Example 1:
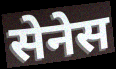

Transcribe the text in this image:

सेनेस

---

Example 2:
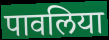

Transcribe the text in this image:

पावलिया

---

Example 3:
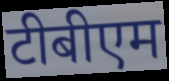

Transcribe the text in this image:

टीबीएम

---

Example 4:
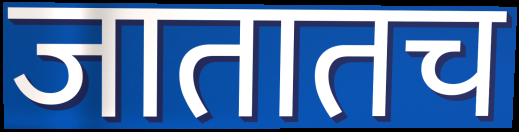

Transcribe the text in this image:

जातातच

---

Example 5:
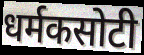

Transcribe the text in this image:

धर्मकसोटी